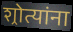
श्रोत्यांना